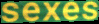
sexes